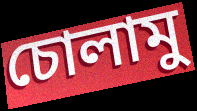
চোলামু